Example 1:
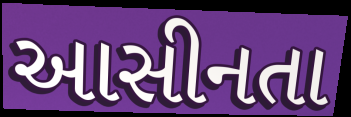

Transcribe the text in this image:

આસીનતા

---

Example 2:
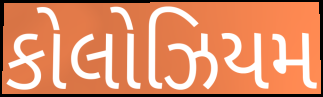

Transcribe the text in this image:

કોલોઝિયમ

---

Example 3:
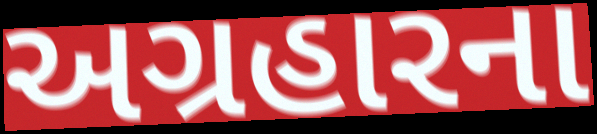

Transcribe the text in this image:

અગ્રહારના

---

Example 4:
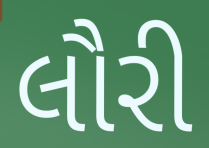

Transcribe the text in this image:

લૌરી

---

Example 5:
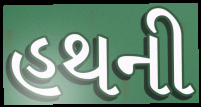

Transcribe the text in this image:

હથની